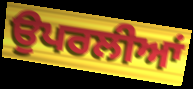
ਉਪਰਲੀਆਂ